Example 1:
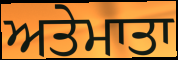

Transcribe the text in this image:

ਅਤੇਮਾਤਾ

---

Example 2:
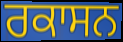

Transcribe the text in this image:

ਰਕਾਸਨ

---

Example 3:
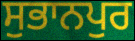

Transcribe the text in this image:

ਸੁਭਾਨਪੁਰ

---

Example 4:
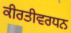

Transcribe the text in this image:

ਕੀਰਤੀਵਰਧਨ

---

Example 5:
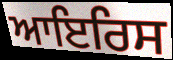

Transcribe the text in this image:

ਆਇਰਿਸ